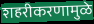
शहरीकरणामुळे